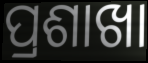
ପ୍ରଶାଖା